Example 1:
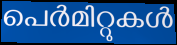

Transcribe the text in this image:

പെർമിറ്റുകൾ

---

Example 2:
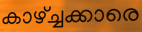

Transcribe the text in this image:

കാഴ്ച്ചക്കാരെ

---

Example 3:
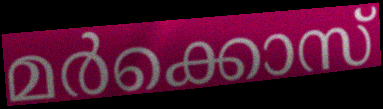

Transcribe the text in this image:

മർക്കൊസ്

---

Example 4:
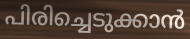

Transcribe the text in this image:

പിരിച്ചെടുക്കാൻ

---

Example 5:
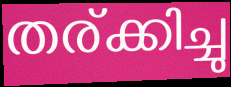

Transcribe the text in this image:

തര്ക്കിച്ചു